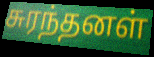
சுரந்தனள்